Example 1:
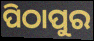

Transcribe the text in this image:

ପିଠାପୁର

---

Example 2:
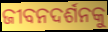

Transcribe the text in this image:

ଜୀବନଦର୍ଶନକୁ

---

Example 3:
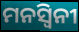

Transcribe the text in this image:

ମନସ୍ୱିନୀ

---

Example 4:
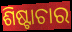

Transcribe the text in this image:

ଶିଷ୍ଟାଚାର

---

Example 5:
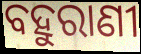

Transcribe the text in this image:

ବହୁରାଣୀ